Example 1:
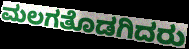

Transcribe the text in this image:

ಮಲಗತೊಡಗಿದರು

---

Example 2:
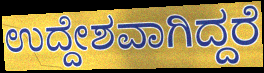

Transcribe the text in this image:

ಉದ್ದೇಶವಾಗಿದ್ದರೆ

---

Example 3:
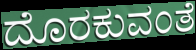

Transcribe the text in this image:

ದೊರಕುವಂತೆ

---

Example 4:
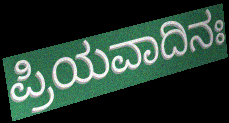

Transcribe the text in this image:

ಪ್ರಿಯವಾದಿನಃ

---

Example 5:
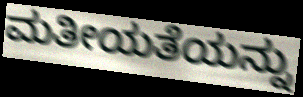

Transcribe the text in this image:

ಮತೀಯತೆಯನ್ನು